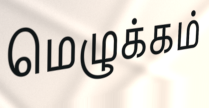
மெழுக்கம்